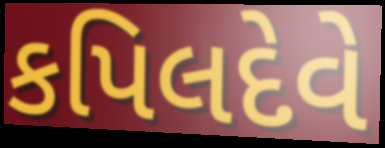
કપિલદેવે